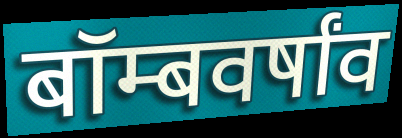
बॉम्बवर्षांव